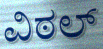
ವಿಠಲ್